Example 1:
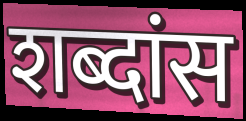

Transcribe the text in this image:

शब्दांस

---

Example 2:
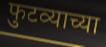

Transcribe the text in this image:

फुटव्याच्या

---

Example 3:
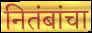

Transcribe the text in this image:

नितंबांचा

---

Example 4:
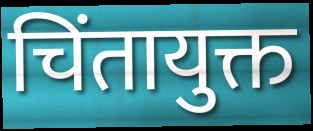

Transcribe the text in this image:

चिंतायुक्त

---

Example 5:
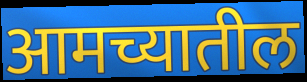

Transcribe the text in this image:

आमच्यातील